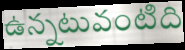
ఉన్నటువంటిది